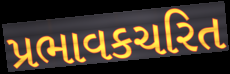
પ્રભાવકચરિત